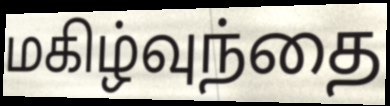
மகிழ்வுந்தை